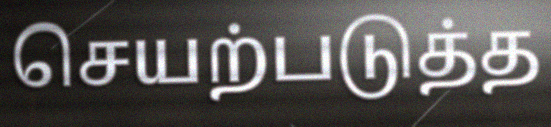
செயற்படுத்த